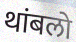
थांबलो